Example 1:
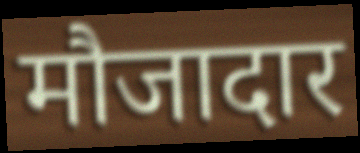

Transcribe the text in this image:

मौजादार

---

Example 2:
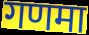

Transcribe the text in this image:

गणमा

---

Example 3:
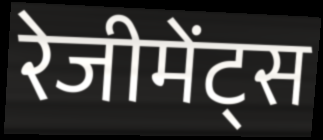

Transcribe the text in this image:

रेजीमेंट्स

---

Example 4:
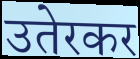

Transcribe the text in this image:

उतेरकर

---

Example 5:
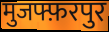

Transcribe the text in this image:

मुजफ्फ़रपुर